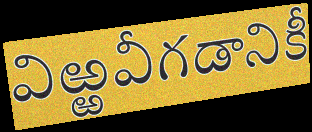
విఱ్ఱవీగడానికీ